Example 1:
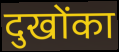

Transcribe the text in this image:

दुखोंका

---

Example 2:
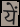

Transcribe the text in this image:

यें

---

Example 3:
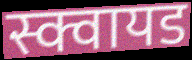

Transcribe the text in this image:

स्क्वायड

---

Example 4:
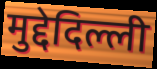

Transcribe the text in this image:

मुद्देदिल्ली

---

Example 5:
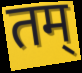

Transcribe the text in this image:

तम्